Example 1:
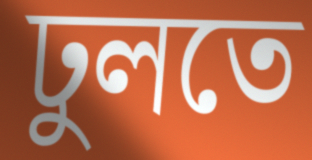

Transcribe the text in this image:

ঢুলতে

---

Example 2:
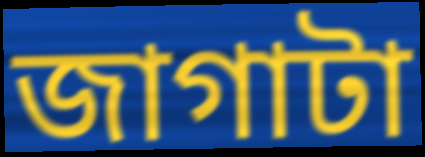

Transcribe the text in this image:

জাগাটা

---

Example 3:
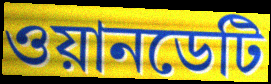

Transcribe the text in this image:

ওয়ানডেটি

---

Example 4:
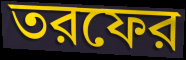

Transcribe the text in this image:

তরফের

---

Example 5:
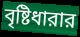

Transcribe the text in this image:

বৃষ্টিধারার